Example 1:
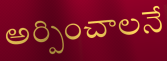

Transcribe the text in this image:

అర్పించాలనే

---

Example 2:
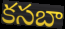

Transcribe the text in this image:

కసబా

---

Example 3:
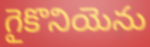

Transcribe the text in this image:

గైకొనియెను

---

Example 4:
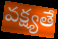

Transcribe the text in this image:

వక్ష్యతే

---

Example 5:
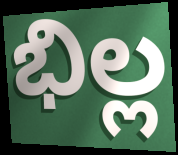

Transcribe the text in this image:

భిల్ల